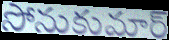
సోనుకుమార్